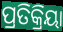
ପ୍ରତିକ୍ରିୟା